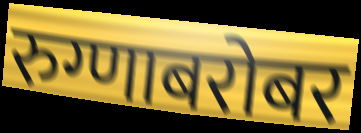
रुग्णाबरोबर